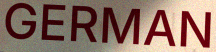
GERMAN